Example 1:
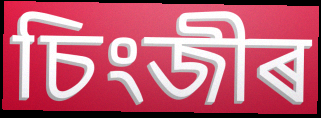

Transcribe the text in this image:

চিংজীৰ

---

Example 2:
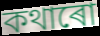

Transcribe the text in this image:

কথাৰো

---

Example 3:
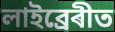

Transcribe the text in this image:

লাইব্ৰেৰীত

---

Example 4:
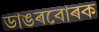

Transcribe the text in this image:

ডাঙৰবোৰক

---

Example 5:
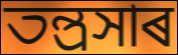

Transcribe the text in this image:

তন্ত্ৰসাৰ